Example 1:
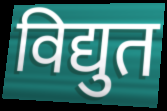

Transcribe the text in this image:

विद्युत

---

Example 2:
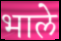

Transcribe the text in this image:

भाले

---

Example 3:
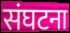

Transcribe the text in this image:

संघटना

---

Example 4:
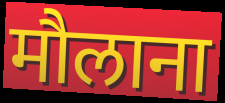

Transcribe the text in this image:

मौलाना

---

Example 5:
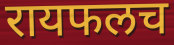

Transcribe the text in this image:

रायफलच